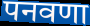
पनवणा